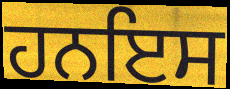
ਹਨਇਸ